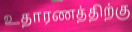
உதாரணத்திற்கு